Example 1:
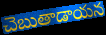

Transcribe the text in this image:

చెబుతాడాయన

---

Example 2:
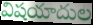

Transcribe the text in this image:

విషయాదుల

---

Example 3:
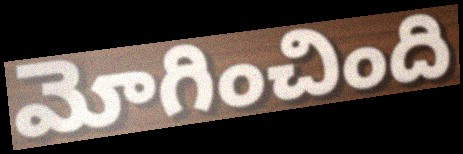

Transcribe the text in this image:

మోగించింది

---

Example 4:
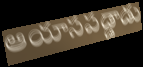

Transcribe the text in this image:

ఆయాసపడ్డాడు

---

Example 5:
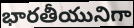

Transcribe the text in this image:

భారతీయునిగా